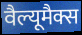
वैल्यूमैक्स